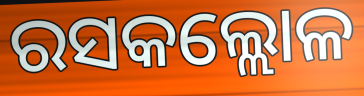
ରସକଲ୍ଲୋଳ